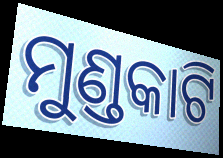
ମୁଣ୍ଡକାଟି